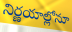
నిర్ణయాల్లోనూ